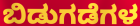
ಬಿಡುಗಡೆಗಳ